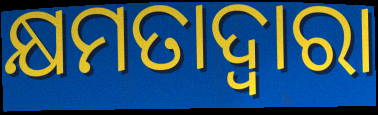
କ୍ଷମତାଦ୍ୱାରା